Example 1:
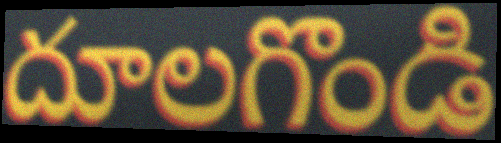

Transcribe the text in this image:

దూలగొండి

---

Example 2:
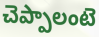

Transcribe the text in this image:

చెప్పాలంటె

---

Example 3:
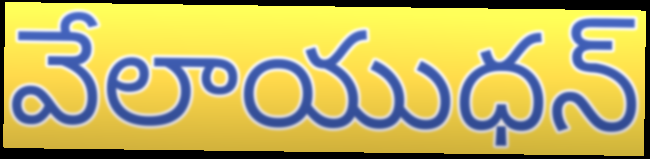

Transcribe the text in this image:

వేలాయుధన్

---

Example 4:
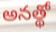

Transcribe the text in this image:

అనత్థో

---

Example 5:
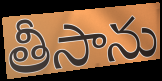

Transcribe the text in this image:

తీసాను